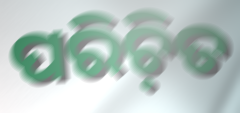
ପରିଚ଼ିତ